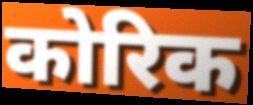
कोरिक